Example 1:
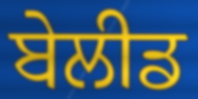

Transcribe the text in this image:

ਬੇਲੀਡ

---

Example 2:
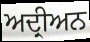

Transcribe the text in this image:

ਅਦ੍ਰੀਅਨ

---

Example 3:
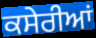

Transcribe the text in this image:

ਕਸੇਰੀਆਂ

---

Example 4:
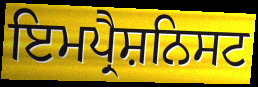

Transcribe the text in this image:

ਇਮਪ੍ਰੈਸ਼ਨਿਸਟ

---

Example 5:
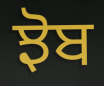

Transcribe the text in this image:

ਝੋਬ